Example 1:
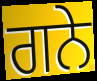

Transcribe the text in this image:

ਗਨੇ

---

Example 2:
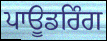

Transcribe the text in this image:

ਪਾਊਡਰਿੰਗ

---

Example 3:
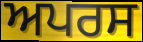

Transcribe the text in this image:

ਅਪਰਸ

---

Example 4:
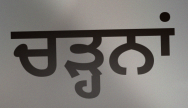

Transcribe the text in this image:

ਚੜ੍ਹਨਾਂ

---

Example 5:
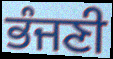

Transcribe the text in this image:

ਭੰਜਣੀ